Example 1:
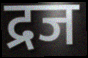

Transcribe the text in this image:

द्रज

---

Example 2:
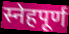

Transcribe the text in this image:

स्नेहपूर्ण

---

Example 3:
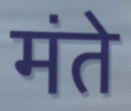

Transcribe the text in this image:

मंते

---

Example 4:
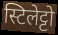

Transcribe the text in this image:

स्टिलेट्टो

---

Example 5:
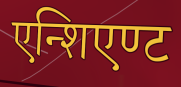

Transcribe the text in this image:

एन्शिएण्ट